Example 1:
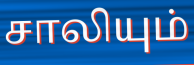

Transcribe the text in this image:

சாலியும்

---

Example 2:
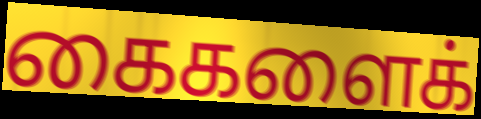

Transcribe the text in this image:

கைகளைக்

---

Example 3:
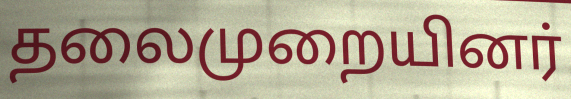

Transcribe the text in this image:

தலைமுறையினர்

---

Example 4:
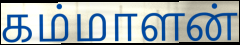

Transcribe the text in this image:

கம்மாளன்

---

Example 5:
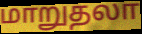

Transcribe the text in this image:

மாறுதலா